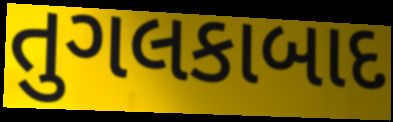
તુગલકાબાદ